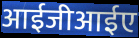
आईजीआईए